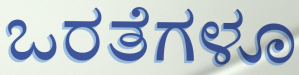
ಒರತೆಗಳೂ